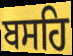
ਬਸਹਿ